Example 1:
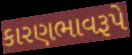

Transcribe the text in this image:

કારણભાવરૂપે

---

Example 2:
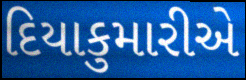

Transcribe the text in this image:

દિયાકુમારીએ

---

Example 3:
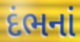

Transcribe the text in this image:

દંભનાં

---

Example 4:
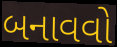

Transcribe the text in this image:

બનાવવો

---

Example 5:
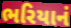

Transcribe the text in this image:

ભરિયાનં